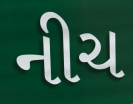
નીચ